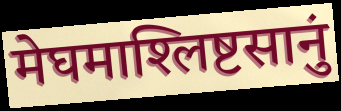
मेघमाश्लिष्टसानुं